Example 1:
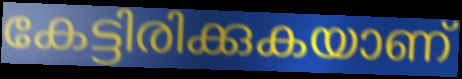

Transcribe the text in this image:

കേട്ടിരിക്കുകയാണ്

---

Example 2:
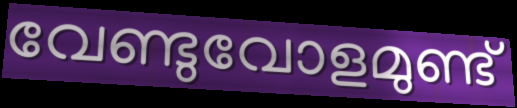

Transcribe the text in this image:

വേണ്ടുവോളമുണ്ട്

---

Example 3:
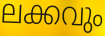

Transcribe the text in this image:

ലക്കവും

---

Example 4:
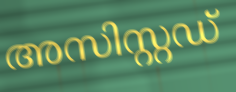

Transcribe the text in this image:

അസിസ്റ്റഡ്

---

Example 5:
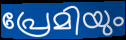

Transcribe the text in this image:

പ്രേമിയും